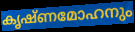
കൃഷ്ണമോഹനും